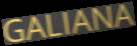
GALIANA